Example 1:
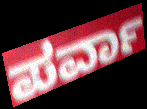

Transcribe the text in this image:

ಪರ್ವಾ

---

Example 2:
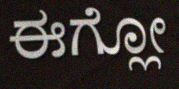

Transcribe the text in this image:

ಈಗ್ಲೋ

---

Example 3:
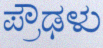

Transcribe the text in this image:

ಪ್ರೌಢಳು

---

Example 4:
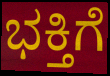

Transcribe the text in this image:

ಭಕ್ತಿಗೆ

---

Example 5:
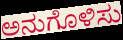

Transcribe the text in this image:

ಅನುಗೊಳಿಸು